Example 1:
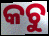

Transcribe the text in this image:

କଚୁ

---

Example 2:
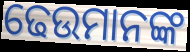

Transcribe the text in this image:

ଢେଉମାନଙ୍କ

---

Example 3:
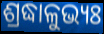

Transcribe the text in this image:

ଶ୍ରଦ୍ଧାଳୁଭ୍ୟଃ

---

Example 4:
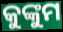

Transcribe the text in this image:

କୁଙ୍କୁମ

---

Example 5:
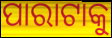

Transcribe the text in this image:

ପାରାଟାକୁ